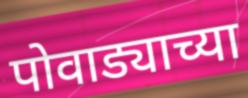
पोवाड्याच्या